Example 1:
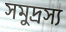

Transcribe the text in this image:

সমুদ্রস্য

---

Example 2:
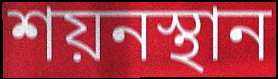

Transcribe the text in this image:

শয়নস্থান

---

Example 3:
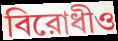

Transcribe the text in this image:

বিরোধীও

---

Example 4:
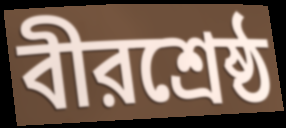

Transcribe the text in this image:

বীরশ্রেষ্ঠ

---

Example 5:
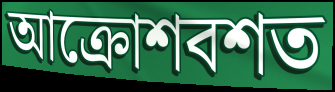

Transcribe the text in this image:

আক্রোশবশত